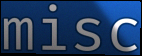
misc